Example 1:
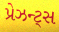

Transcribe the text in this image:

પ્રેઝન્ટ્સ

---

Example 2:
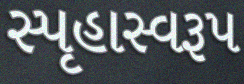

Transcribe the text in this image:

સ્પૃહાસ્વરૂપ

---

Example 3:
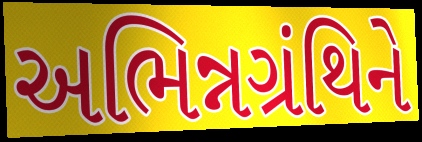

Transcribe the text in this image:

અભિન્નગ્રંથિને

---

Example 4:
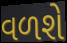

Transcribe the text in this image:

વળશે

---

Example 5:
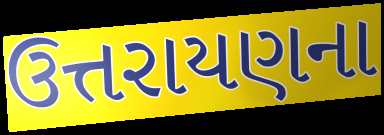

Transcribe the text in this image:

ઉત્તરાયણના